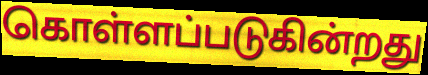
கொள்ளப்படுகின்றது